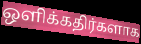
ஒளிக்கதிர்களாக